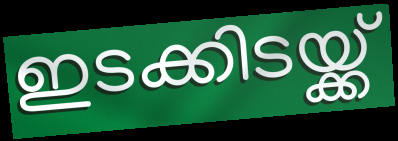
ഇടക്കിടയ്ക്ക്